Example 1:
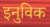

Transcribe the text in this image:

इनुविक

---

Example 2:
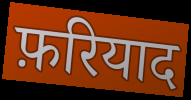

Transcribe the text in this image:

फ़रियाद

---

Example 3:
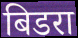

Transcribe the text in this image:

बिडरा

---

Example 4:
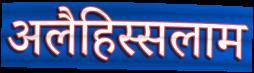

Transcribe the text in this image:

अलैहिस्सलाम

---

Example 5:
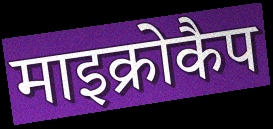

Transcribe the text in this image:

माइक्रोकैप